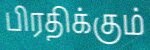
பிரதிக்கும்